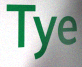
Tye